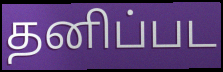
தனிப்பட